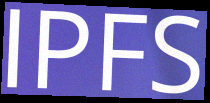
IPFS